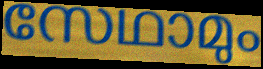
സേഥാമും